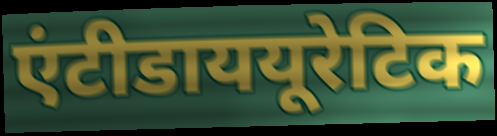
एंटीडाययूरेटिक